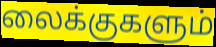
லைக்குகளும்